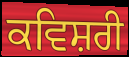
ਕਵਿਸ਼ਰੀ